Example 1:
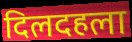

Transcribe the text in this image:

दिलदहला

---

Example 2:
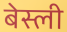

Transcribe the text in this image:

बेस्ली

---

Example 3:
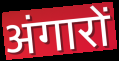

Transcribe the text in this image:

अंगारों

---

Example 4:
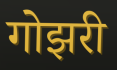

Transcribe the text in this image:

गोझरी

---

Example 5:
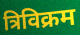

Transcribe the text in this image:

त्रिविक्रम